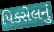
પિક્સેલનું